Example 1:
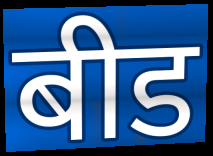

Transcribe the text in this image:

बीड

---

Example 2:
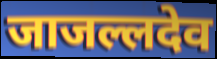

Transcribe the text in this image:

जाजल्लदेव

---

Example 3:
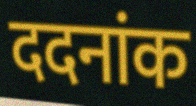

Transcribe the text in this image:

ददनांक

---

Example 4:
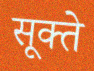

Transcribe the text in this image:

सूक्ते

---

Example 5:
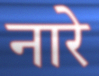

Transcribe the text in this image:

नारे